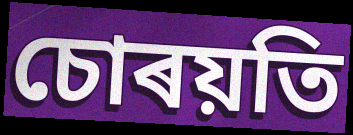
চোৰয়তি